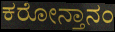
ಕರೋನ್ತಾನಂ